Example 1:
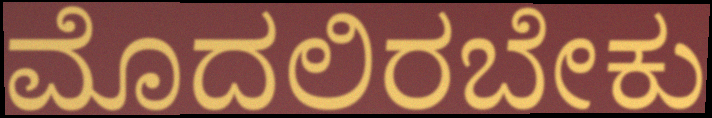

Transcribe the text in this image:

ಮೊದಲಿರಬೇಕು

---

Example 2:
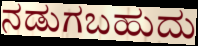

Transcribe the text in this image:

ನಡುಗಬಹುದು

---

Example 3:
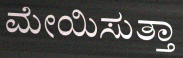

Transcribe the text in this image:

ಮೇಯಿಸುತ್ತಾ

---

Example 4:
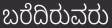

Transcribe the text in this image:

ಬರೆದಿರುವರು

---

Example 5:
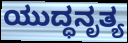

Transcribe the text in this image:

ಯುದ್ಧನೃತ್ಯ